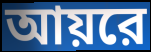
আয়রে